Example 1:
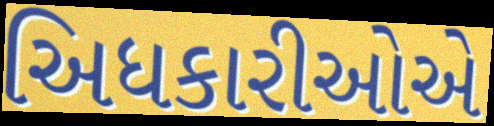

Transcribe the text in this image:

અિધકારીઓએ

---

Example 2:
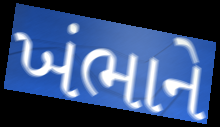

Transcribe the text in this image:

ખંભાને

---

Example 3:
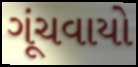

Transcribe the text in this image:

ગૂંચવાયો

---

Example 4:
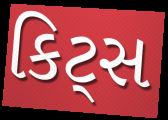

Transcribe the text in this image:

કિટ્સ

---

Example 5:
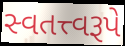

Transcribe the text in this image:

સ્વતત્ત્વરૂપે